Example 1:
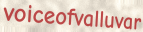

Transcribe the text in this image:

voiceofvalluvar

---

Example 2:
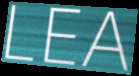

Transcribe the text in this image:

LEA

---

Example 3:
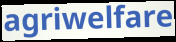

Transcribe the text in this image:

agriwelfare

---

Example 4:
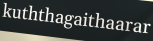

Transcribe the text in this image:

kuththagaithaarar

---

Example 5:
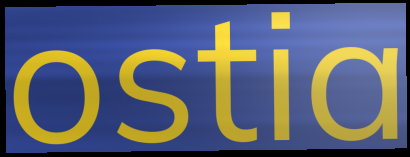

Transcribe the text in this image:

ostia